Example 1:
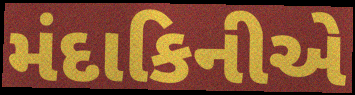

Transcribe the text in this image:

મંદાકિનીએ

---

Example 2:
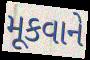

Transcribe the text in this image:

મૂકવાને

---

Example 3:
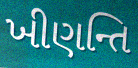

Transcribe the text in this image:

ખીણન્તિ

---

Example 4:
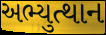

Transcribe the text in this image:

અભ્યુત્થાન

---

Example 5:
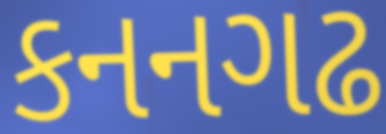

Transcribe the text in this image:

કનનગઢ